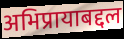
अभिप्रायाबद्दल